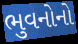
ભુવનોનો